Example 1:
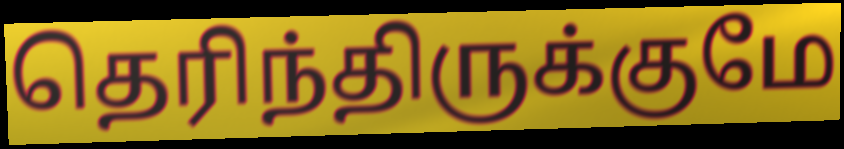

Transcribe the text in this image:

தெரிந்திருக்குமே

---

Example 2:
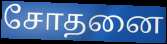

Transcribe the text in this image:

சோதனை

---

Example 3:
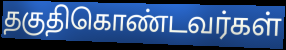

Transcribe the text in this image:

தகுதிகொண்டவர்கள்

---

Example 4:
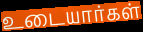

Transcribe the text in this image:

உடையார்கள்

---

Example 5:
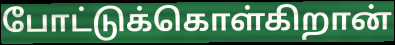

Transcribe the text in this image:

போட்டுக்கொள்கிறான்